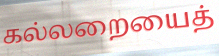
கல்லறையைத்